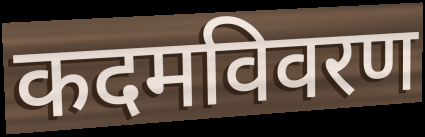
कदमविवरण